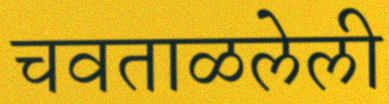
चवताळलेली